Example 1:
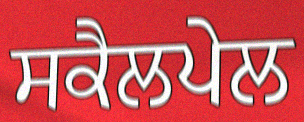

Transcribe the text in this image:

ਸਕੈਲਪੇਲ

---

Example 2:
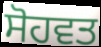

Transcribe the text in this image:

ਸੋਹਵਤ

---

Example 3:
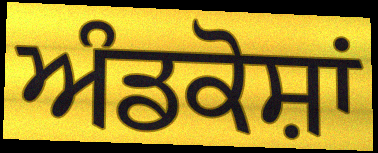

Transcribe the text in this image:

ਅੰਡਕੋਸ਼ਾਂ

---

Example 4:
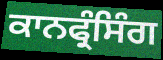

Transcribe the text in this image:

ਕਾਨਫ੍ਰੰਸਿੰਗ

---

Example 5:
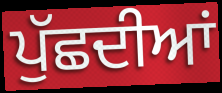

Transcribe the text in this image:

ਪੁੱਛਦੀਆਂ